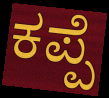
ಕಪ್ಪೆ